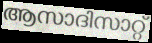
ആസാദിസാറ്റ്